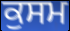
ਕੁਸਮ